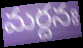
మర్దనః